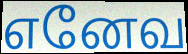
எனேவ